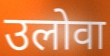
उलोवा